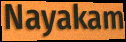
Nayakam